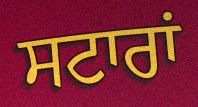
ਸਟਾਰਾਂ